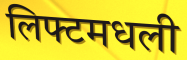
लिफ्टमधली